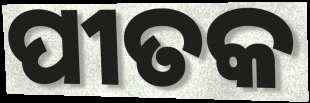
ପୀତକ